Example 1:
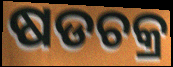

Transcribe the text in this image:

ଷଡଚକ୍ର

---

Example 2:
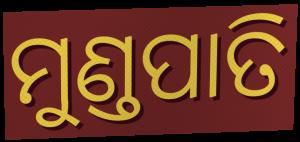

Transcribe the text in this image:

ମୁଣ୍ଡପାତି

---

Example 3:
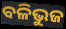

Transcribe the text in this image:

ବଳିଭୁଜ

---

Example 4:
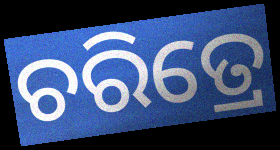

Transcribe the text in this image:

ଚରିତ୍ରେ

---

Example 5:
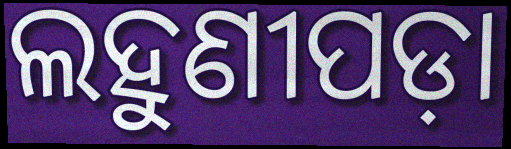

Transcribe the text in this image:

ଲହୁଣୀପଡ଼ା